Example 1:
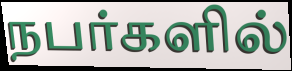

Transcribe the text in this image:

நபர்களில்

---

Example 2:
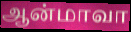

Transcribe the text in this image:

ஆன்மாவா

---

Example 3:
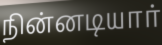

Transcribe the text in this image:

நின்னடியார்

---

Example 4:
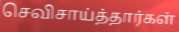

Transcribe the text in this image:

செவிசாய்த்தார்கள்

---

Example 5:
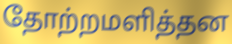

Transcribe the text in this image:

தோற்றமளித்தன